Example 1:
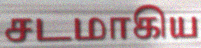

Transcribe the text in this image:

சடமாகிய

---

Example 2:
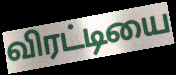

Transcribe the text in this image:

விரட்டியை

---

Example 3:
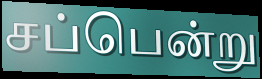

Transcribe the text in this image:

சப்பென்று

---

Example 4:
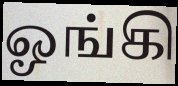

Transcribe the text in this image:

ஓங்கி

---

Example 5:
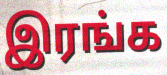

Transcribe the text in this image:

இரங்க